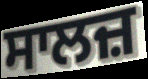
ਸਾਲਜ਼